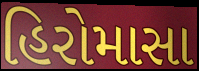
હિરોમાસા